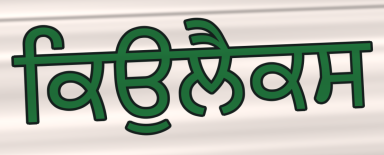
ਕਿਉਲੈਕਸ